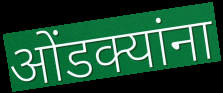
ओंडक्यांना